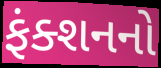
ફંક્શનનો